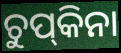
ଚୁପ୍‌କିନା